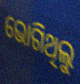
ଭୋଗିଥିଲୁ